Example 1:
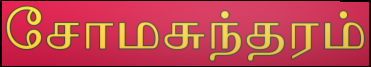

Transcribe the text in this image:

சோமசுந்தரம்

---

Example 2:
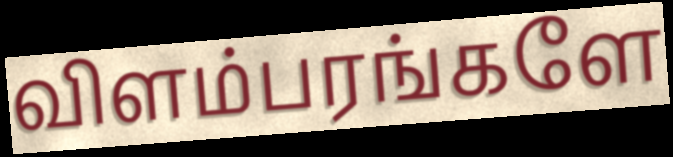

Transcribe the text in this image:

விளம்பரங்களே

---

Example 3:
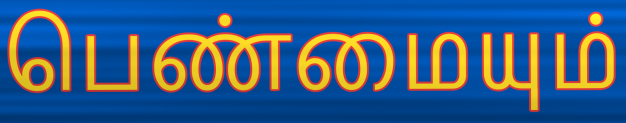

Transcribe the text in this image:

பெண்மையும்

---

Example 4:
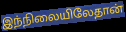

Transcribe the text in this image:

இந்நிலையிலேதான்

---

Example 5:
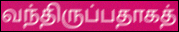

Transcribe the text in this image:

வந்திருப்பதாகத்